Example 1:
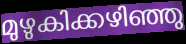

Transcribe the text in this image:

മുഴുകിക്കഴിഞ്ഞു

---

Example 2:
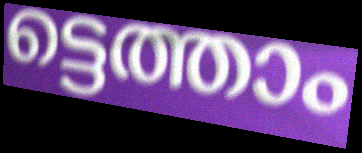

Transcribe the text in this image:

ട്ടെത്താം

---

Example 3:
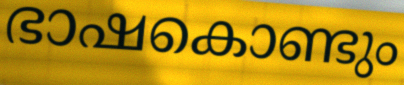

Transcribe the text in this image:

ഭാഷകൊണ്ടും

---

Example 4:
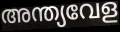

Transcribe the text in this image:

അന്ത്യവേള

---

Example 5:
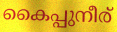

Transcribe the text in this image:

കൈപ്പുനീര്